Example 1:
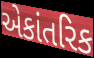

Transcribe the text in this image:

એકાંતરિક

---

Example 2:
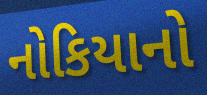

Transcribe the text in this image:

નોકિયાનો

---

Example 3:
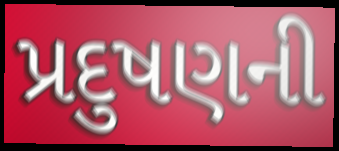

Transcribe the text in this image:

પ્રદુષણની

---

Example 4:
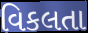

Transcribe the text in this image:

વિકલતા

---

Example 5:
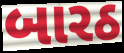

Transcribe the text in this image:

બારઠ